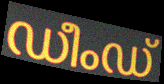
ഡീംഡ്